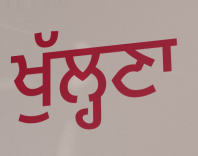
ਖੁੱਲ੍ਹਣਾ